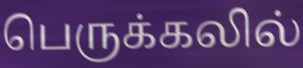
பெருக்கலில்